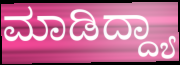
ಮಾಡಿದ್ದ್ಯಾ